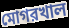
মোগরখাল